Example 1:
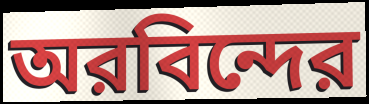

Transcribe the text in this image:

অরবিন্দের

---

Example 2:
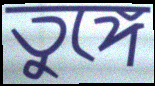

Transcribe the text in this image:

তুঙ্গে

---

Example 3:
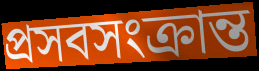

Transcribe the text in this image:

প্রসবসংক্রান্ত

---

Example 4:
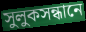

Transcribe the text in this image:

সুলুকসন্ধানে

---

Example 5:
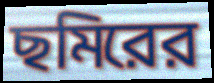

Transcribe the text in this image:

ছমিরের